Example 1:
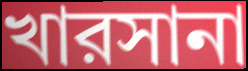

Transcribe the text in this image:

খারসানা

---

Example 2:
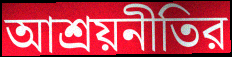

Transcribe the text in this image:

আশ্রয়নীতির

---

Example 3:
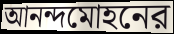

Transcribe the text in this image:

আনন্দমোহনের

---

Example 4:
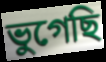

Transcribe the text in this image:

ভুগেছি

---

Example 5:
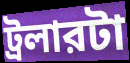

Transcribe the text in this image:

ট্রলারটা